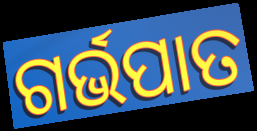
ଗର୍ଭପାତ